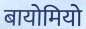
बायोमियो